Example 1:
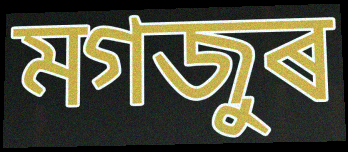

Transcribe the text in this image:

মগজুৰ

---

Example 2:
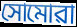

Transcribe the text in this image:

সোমোৱা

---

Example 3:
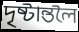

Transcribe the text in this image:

দৃষ্টান্তলৈ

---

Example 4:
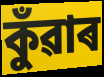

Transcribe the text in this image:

কুঁৱাৰ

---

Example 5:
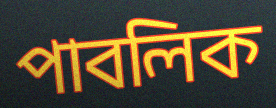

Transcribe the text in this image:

পাবলিক